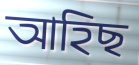
আহিছ